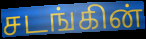
சடங்கின்